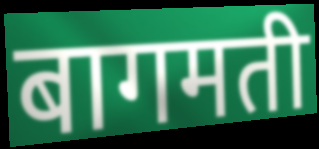
बागमती